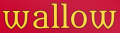
wallow